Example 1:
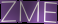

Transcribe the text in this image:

ZME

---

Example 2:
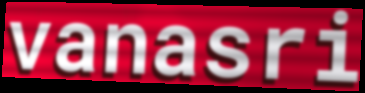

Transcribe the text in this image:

vanasri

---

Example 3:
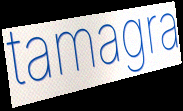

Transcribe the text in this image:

tamagra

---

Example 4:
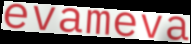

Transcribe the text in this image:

evameva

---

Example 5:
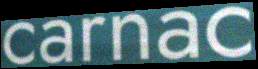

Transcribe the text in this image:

carnac